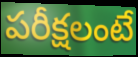
పరీక్షలంటే